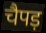
चैपड़